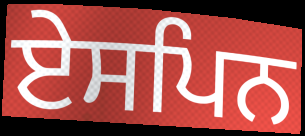
ਏਸਪਿਨ